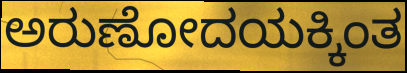
ಅರುಣೋದಯಕ್ಕಿಂತ